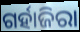
ଗର୍ହାଜିରା